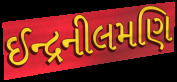
ઈન્દ્રનીલમણિ